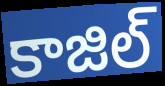
కాజిల్